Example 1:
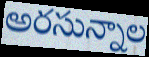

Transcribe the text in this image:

అరసున్నాల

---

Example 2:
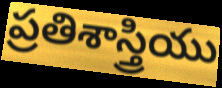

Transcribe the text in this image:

ప్రతిశాస్త్రియు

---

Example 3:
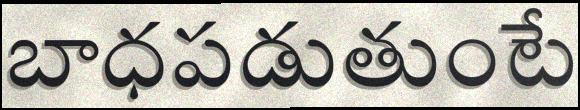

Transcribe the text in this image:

బాధపడుతుంటే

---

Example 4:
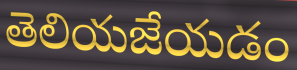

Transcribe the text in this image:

తెలియజేయడం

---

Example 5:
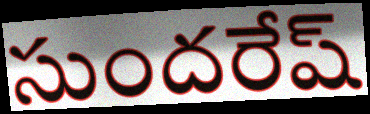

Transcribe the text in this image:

సుందరేష్